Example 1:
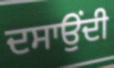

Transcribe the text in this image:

ਦਸਾਉਂਦੀ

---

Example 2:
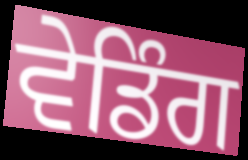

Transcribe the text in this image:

ਵੇਡਿੰਗ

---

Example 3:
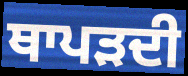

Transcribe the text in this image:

ਥਾਪੜਦੀ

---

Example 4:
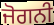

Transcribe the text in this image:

ਜੋਗਨੀ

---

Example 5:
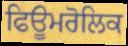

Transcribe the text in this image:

ਫਿਊਮਰੋਲਿਕ